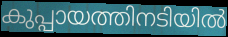
കുപ്പായത്തിനടിയിൽ